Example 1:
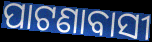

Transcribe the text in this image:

ପାଟଣାବାସୀ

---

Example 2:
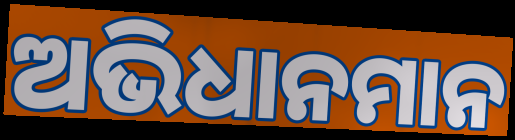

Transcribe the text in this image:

ଅଭିଧାନମାନ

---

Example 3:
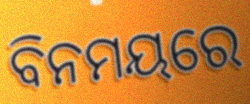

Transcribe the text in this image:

ବିନମୟରେ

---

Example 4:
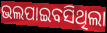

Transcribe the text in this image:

ଭଲପାଇବସିଥିଲା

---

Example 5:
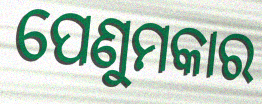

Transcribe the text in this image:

ପେଣୁମକାର